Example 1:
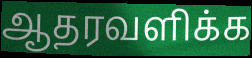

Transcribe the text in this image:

ஆதரவளிக்க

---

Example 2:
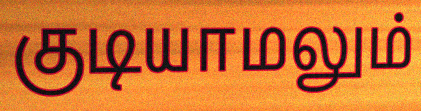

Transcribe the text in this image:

குடியாமலும்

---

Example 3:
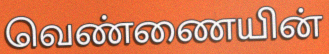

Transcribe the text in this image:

வெண்ணையின்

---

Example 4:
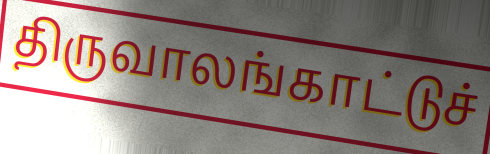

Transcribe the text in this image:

திருவாலங்காட்டுச்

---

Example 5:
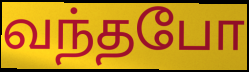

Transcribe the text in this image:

வந்தபோ